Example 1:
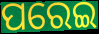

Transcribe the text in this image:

ପରେଇ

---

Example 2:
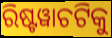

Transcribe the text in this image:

ରିଷ୍ଟୱାଚଟିକୁ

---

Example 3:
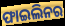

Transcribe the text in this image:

ଫାଇଲିନର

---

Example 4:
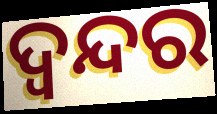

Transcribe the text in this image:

ଦ୍ବନ୍ଦର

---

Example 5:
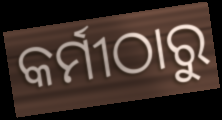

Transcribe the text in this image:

କର୍ମୀଠାରୁ